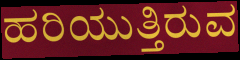
ಹರಿಯುತ್ತಿರುವ